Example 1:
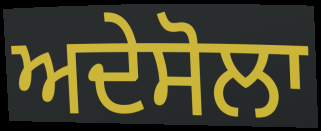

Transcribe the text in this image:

ਅਦੇਸੋਲਾ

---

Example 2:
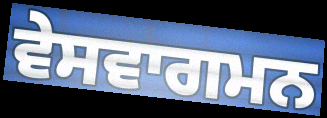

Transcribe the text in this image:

ਵੇਸਵਾਗਮਨ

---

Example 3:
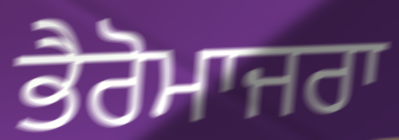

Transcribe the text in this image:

ਭੈਰੋਮਾਜਰਾ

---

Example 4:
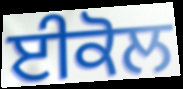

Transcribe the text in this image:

ਈਕੋਲ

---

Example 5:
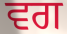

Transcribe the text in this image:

ਵਗ